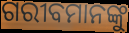
ଗରୀବମାନଙ୍କୁ